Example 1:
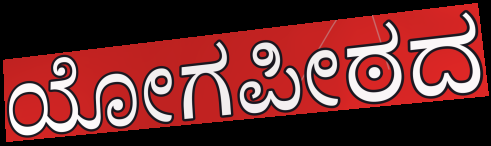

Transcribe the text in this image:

ಯೋಗಪೀಠದ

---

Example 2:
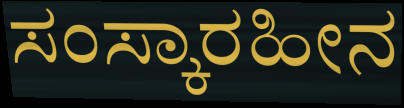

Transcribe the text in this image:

ಸಂಸ್ಕಾರಹೀನ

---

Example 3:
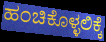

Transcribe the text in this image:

ಹಂಚಿಕೊಳ್ಳಲಿಕ್ಕೆ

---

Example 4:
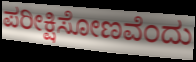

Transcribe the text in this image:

ಪರೀಕ್ಷಿಸೋಣವೆಂದು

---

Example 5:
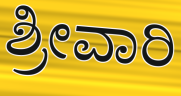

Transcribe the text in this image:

ಶ್ರೀವಾರಿ